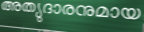
അത്യുദാരനുമായ